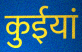
कुईयां